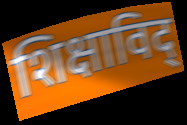
शिक्षाविद्